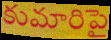
కుమారిపై